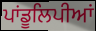
ਪਾਂਡੂਲਿਪੀਆਂ